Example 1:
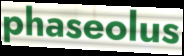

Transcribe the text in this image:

phaseolus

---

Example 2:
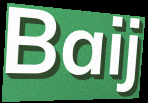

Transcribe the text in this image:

Baij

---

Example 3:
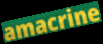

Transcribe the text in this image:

amacrine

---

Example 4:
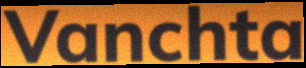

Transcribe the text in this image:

Vanchta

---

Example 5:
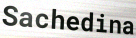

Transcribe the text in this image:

Sachedina